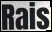
Rais